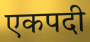
एकपदी